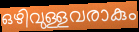
ഒഴിവുള്ളവരാകും